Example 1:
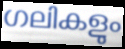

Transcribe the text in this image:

ഗലികളും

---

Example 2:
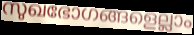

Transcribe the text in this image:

സുഖഭോഗങ്ങളെല്ലാം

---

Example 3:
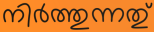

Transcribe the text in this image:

നിർത്തുന്നതു്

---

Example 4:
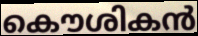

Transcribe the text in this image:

കൌശികൻ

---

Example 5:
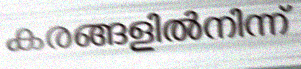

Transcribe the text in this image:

കരങ്ങളിൽനിന്ന്